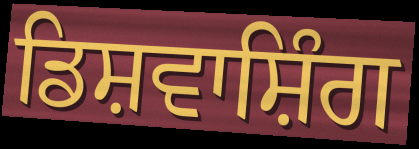
ਡਿਸ਼ਵਾਸ਼ਿੰਗ